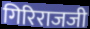
गिरिराजजी